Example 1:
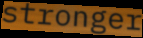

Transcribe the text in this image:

stronger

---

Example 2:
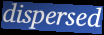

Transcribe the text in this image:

dispersed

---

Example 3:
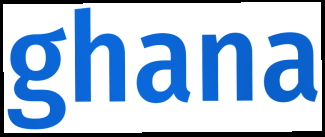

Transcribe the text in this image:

ghana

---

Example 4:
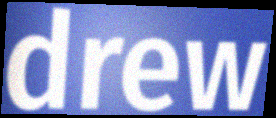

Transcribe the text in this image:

drew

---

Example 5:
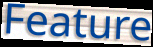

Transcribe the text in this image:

Feature